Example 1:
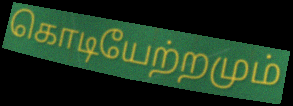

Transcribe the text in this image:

கொடியேற்றமும்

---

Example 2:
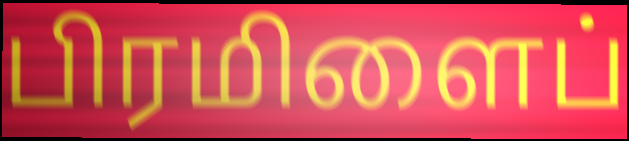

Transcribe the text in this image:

பிரமிளைப்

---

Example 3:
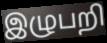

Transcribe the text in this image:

இழுபறி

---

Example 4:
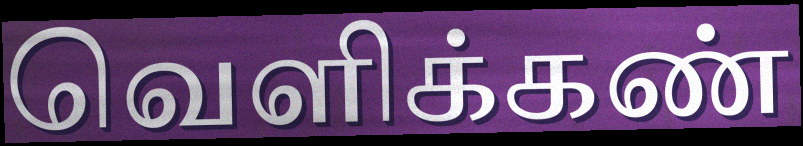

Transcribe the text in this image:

வெளிக்கண்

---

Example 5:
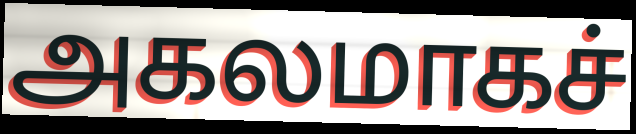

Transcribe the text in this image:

அகலமாகச்